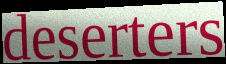
deserters